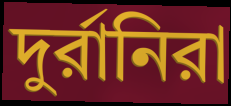
দুর্রানিরা